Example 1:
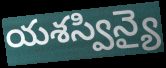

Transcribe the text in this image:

యశస్విన్యై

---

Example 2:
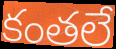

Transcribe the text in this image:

కంతలే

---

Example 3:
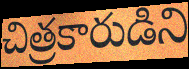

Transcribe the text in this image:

చిత్రకారుడిని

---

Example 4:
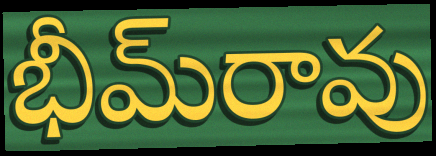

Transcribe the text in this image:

భీమ్‌రావు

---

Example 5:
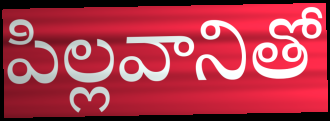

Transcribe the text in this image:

పిల్లవానితో